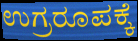
ಉಗ್ರರೂಪಕ್ಕೆ